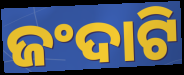
ଜଂଦାଟି